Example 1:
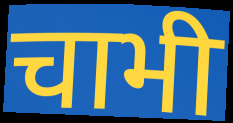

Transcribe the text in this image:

चाभी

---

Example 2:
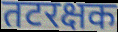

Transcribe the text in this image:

तटरक्षक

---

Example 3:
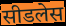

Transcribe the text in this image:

सीडलेस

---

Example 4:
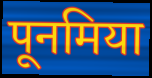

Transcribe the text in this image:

पूनमिया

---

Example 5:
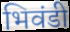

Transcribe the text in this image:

भिवंडी